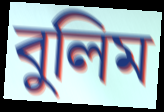
বুলিম